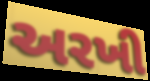
અરખી